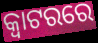
କ୍ୱାଟରରେ